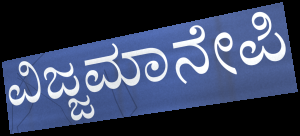
ವಿಜ್ಜಮಾನೇಪಿ